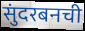
सुंदरबनची